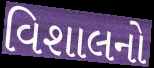
વિશાલનો